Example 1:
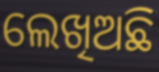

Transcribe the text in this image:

ଲେଖିଅଛି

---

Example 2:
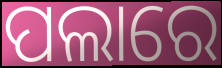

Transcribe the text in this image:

ପଲାରେ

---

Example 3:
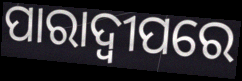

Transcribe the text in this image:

ପାରାଦ୍ୱୀପରେ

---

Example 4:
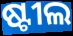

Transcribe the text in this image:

ଷ୍ଟୀଲ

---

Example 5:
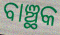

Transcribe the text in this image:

ବାଞ୍ଛକ